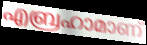
എബ്രഹാമാണ്